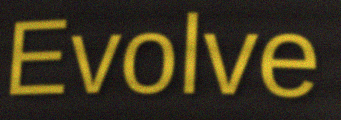
Evolve